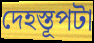
দেহস্তূপটা